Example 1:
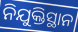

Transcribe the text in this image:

ନିଯୁକ୍ତିସ୍ଥାନ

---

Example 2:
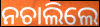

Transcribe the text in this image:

ନଚାଲିଲେ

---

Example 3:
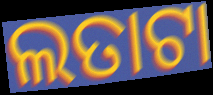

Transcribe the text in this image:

ଲତାଟା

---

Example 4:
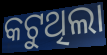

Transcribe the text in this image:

କଟୁଥିଲା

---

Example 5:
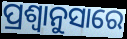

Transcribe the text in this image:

ପ୍ରଶ୍ବାନୁସାରେ